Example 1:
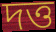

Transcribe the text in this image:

দত্ত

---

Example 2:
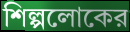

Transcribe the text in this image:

শিল্পলোকের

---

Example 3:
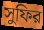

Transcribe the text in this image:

সুফির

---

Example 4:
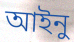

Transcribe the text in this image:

আইনু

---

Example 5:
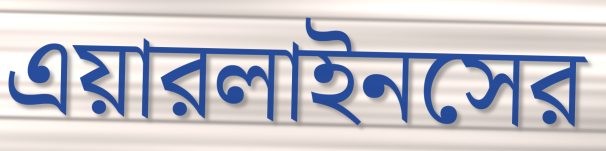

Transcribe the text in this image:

এয়ারলাইনসের